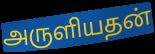
அருளியதன்